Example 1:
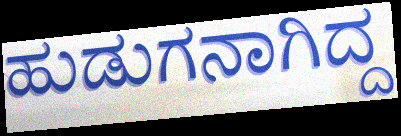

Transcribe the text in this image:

ಹುಡುಗನಾಗಿದ್ದ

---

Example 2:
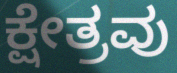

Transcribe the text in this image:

ಕ್ಷೇತ್ರವು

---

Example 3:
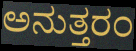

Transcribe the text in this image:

ಅನುತ್ತರಂ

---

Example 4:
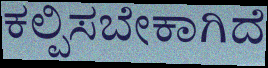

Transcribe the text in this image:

ಕಲ್ಪಿಸಬೇಕಾಗಿದೆ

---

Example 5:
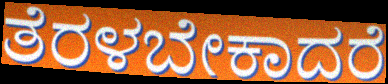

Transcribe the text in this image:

ತೆರಳಬೇಕಾದರೆ